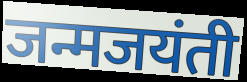
जन्मजयंती